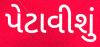
પેટાવીશું